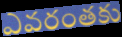
ఎవరంతకు